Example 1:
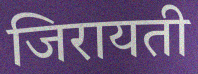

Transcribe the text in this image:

जिरायती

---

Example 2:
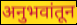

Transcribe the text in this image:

अनुभवांतून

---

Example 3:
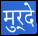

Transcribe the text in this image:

मुर्दे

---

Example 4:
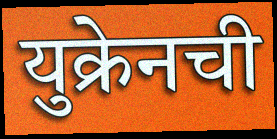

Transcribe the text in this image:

युक्रेनची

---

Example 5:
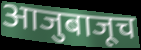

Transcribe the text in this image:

आजुबाजूच